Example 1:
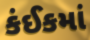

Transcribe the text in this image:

કંઈકમાં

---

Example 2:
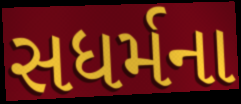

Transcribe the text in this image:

સધર્મના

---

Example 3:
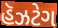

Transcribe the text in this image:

હૅઝટેગ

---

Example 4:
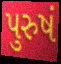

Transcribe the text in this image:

પુરુષં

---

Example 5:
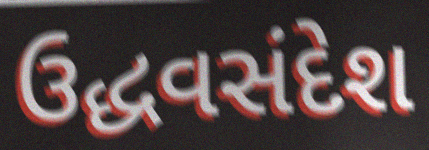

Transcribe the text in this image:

ઉદ્ધવસંદેશ